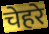
चेहरे